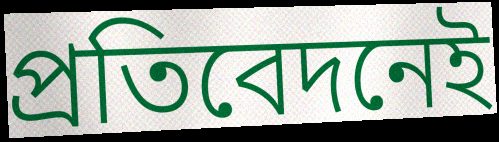
প্রতিবেদনেই